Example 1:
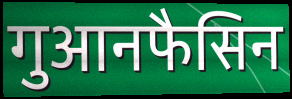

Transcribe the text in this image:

गुआनफैसिन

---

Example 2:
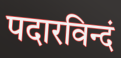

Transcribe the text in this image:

पदारविन्दं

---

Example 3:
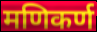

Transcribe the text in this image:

मणिकर्ण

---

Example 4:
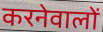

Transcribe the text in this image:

करनेवालों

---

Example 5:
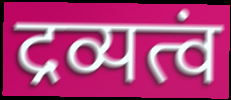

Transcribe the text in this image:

द्रव्यत्वं